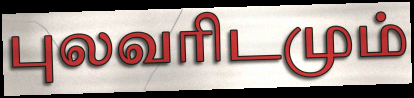
புலவரிடமும்